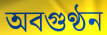
অবগুণ্ঠন